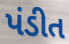
પંડીત